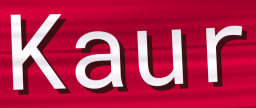
Kaur